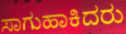
ಸಾಗುಹಾಕಿದರು